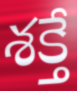
శక్తే